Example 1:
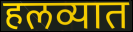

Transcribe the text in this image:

हलव्यात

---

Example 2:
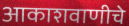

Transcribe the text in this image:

आकाशवाणीचे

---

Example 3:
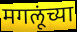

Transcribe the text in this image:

मगलूंच्या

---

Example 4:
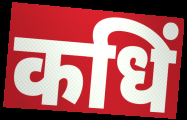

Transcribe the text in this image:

कधिं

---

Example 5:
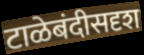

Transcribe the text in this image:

टाळेबंदीसदृश